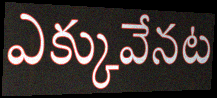
ఎక్కువేనట